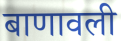
बाणावली